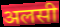
अलसी